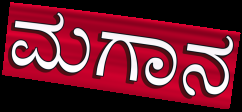
ಮಗಾನ